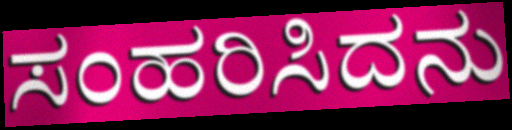
ಸಂಹರಿಸಿದನು